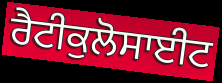
ਰੈਟੀਕੁਲੋਸਾਈਟ